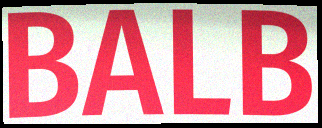
BALB